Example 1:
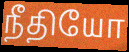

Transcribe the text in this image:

நீதியோ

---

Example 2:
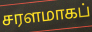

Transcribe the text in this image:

சரளமாகப்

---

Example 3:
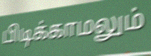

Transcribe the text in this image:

பிடிக்காமலும்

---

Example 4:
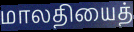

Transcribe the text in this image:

மாலதியைத்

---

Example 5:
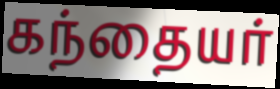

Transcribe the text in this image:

கந்தையர்